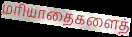
மரியாதைகளைத்